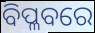
ବିପ୍ଳବରେ